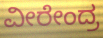
ವೀರೇಂದ್ರ